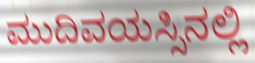
ಮುದಿವಯಸ್ಸಿನಲ್ಲಿ